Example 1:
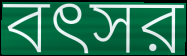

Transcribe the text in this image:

বৎসর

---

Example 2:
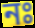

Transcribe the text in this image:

নঃ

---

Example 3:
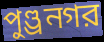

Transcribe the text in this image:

পুণ্ড্রনগর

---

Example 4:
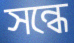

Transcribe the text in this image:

সন্ধে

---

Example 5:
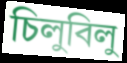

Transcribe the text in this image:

চিলুবিলু